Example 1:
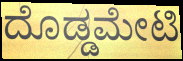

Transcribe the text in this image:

ದೊಡ್ಡಮೇಟಿ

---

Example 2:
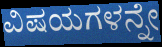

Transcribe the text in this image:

ವಿಷಯಗಳನ್ನೇ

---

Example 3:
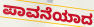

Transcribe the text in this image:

ಪಾವನೆಯಾದ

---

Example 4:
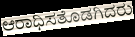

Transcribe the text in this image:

ಆರಾಧಿಸತೊಡಗಿದರು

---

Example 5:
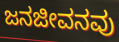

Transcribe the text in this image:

ಜನಜೀವನವು